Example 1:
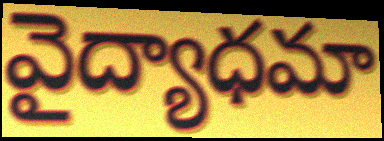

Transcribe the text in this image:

వైద్యాధమా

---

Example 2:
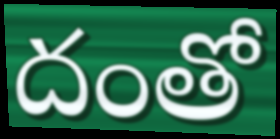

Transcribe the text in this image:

దంతో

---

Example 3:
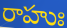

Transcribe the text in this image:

రాహుః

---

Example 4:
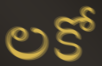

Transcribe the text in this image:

లకో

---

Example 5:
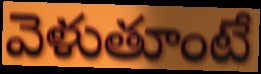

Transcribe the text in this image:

వెళుతూంటే